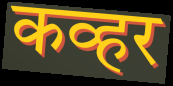
कव्हर